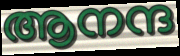
ആനന്ദ